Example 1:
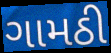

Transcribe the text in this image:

ગામઠી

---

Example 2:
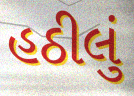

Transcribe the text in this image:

હઠીલું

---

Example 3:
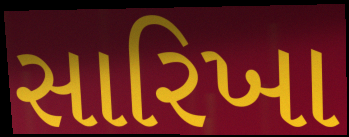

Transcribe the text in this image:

સારિખા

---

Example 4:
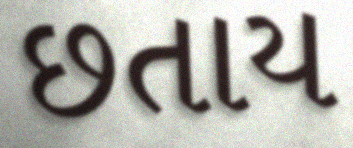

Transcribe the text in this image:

છતાય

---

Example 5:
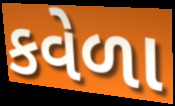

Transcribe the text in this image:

કવેળા